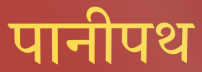
पानीपथ